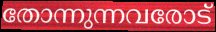
തോന്നുന്നവരോട്